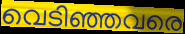
വെടിഞ്ഞവരെ